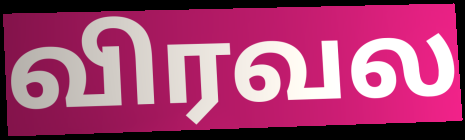
விரவல